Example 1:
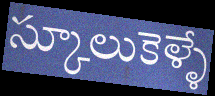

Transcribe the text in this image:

స్కూలుకెళ్ళే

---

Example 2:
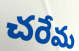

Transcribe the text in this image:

చరేమ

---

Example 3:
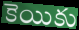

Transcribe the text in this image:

కెయికు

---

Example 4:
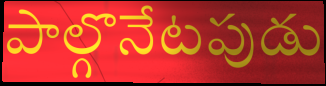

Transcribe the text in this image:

పాల్గొనేటపుడు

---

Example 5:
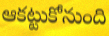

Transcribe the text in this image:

ఆకట్టుకోనుంది